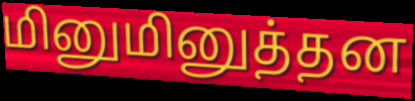
மினுமினுத்தன